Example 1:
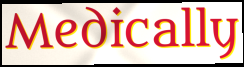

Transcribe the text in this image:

Medically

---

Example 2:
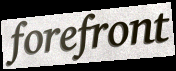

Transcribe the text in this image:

forefront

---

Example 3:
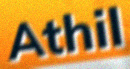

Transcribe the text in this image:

Athil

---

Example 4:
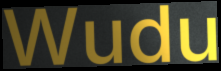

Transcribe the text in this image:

Wudu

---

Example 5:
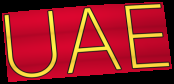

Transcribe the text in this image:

UAE